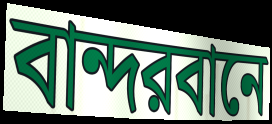
বান্দরবানে